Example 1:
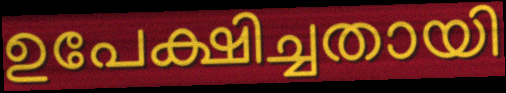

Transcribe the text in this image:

ഉപേക്ഷിച്ചതായി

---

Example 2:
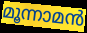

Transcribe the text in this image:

മൂന്നാമൻ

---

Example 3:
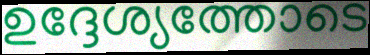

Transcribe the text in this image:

ഉദ്ദേശ്യത്തോടെ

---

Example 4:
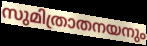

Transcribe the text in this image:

സുമിത്രാതനയനും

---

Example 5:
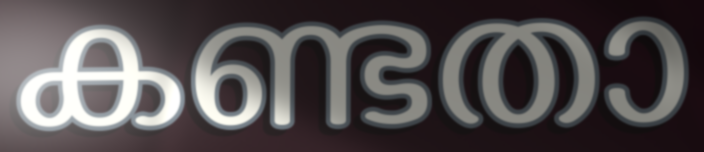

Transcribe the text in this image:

കണ്ടതാ